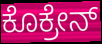
ಕೊಕ್ರೇನ್